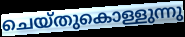
ചെയ്തുകൊള്ളുന്നു